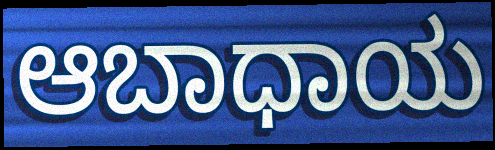
ಆಬಾಧಾಯ